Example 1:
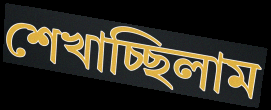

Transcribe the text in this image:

শেখাচ্ছিলাম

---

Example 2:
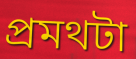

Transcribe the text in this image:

প্রমথটা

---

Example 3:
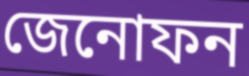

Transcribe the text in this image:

জেনোফন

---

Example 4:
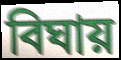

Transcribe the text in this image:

বিঘায়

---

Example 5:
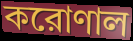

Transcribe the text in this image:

করোণাল